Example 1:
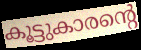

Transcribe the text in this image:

കൂട്ടുകാരന്റെ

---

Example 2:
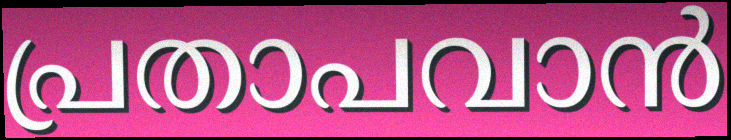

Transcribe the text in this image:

പ്രതാപവാൻ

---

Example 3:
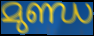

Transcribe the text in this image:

മുണ്ഡ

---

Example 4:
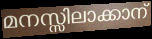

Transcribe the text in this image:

മനസ്സിലാക്കാന്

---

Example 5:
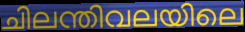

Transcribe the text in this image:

ചിലന്തിവലയിലെ